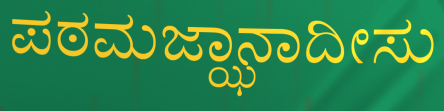
ಪಠಮಜ್ಝಾನಾದೀಸು